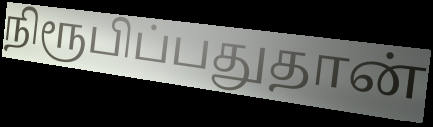
நிரூபிப்பதுதான்